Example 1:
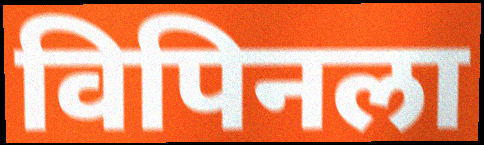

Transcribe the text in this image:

विपिनला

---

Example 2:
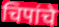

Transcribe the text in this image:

चिपांचे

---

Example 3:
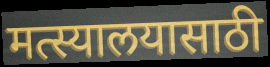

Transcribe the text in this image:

मत्स्यालयासाठी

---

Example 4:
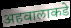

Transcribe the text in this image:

अहवालाकडे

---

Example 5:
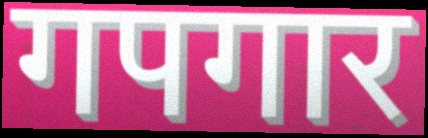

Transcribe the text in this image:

गपगार